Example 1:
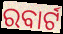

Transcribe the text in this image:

ରବାର୍ଟ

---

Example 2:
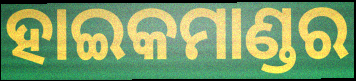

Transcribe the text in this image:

ହାଇକମାଣ୍ଡର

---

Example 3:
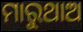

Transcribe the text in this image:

ମାରୁଥାଅ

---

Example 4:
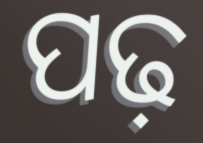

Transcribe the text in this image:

ପଢ଼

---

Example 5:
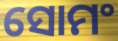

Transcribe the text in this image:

ସୋମଂ